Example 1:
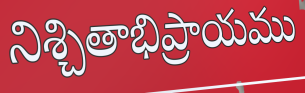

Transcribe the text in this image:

నిశ్చితాభిప్రాయము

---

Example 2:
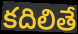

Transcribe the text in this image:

కదిలితే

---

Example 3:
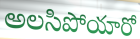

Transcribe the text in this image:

అలసిపోయారో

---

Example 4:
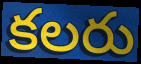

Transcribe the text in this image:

కలరు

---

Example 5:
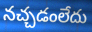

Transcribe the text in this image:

నచ్చడంలేదు